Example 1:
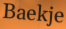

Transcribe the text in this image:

Baekje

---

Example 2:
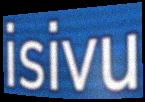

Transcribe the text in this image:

isivu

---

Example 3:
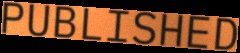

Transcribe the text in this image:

PUBLISHED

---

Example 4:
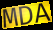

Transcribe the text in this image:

MDA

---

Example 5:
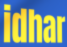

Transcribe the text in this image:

idhar